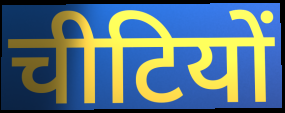
चीटियों